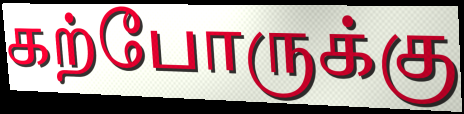
கற்போருக்கு